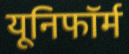
यूनिफॉर्म